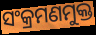
ସଂକ୍ରମଣମୁକ୍ତ